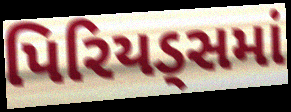
પિરિયડ્સમાં